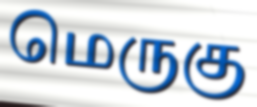
மெருகு